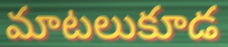
మాటలుకూడ